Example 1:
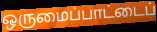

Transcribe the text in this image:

ஒருமைப்பாட்டைப்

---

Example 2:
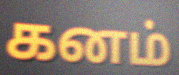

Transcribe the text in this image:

கனம்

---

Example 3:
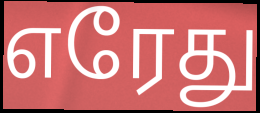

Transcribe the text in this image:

எரேது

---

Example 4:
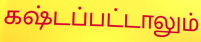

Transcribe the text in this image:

கஷ்டப்பட்டாலும்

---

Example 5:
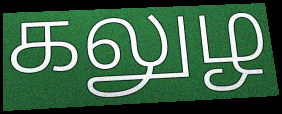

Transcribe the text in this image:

கலுழ